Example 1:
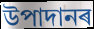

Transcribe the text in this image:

উপাদানৰ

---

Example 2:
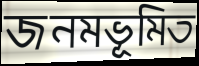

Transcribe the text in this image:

জনমভূমিত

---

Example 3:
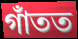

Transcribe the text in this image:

গাঁতত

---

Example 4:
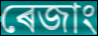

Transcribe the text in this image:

ৰেজাং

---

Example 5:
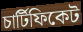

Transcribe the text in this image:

চাৰ্টিফিকেট